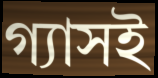
গ্যাসই